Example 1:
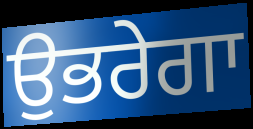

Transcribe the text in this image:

ਉਭਰੇਗਾ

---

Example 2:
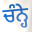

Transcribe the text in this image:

ਚੰਨ੍ਹੇ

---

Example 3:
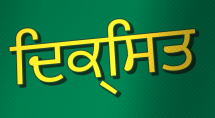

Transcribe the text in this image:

ਦਿਕ੍ਸਿਤ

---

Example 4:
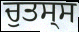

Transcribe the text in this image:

ਚੁਤਸ੍ਸ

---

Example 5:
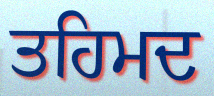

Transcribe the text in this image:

ਤਹਿਮਦ